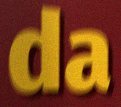
da